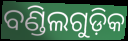
ବଣ୍ଡିଲଗୁଡ଼ିକ